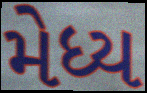
મેધ્ય